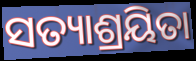
ସତ୍ୟାଶ୍ରୟିତା